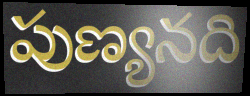
పుణ్యనది